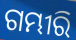
ଗମ୍ଭୀରି